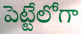
పెట్టేలోగా